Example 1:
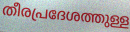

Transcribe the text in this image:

തീരപ്രദേശത്തുള്ള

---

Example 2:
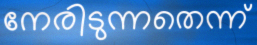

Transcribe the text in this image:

നേരിടുന്നതെന്ന്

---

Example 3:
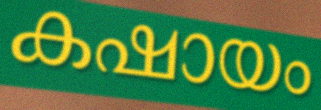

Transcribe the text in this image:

കഷായം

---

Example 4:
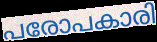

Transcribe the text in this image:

പരോപകാരി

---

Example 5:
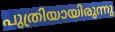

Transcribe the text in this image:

പുത്രിയായിരുന്നു